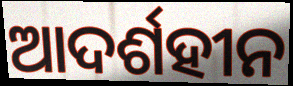
ଆଦର୍ଶହୀନ